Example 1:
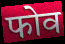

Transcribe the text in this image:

फोव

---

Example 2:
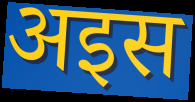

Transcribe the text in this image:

अइस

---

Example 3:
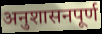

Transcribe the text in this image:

अनुशासनपूर्ण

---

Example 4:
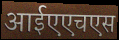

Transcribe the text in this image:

आईएएचएस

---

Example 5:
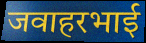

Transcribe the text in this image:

जवाहरभाई